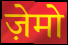
ज़ेमो